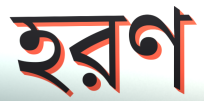
হরণ